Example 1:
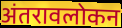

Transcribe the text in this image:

अंतरावलोकन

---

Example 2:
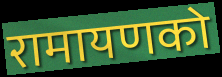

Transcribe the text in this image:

रामायणको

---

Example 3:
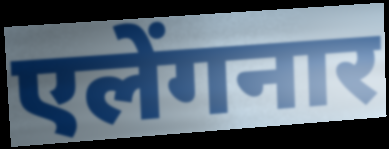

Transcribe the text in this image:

एलेंगनार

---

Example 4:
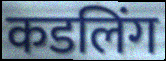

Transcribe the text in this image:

कडलिंग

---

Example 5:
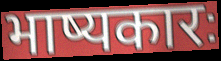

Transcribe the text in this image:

भाष्यकारः